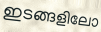
ഇടങ്ങളിലോ